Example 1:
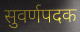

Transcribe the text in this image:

सुवर्णपदक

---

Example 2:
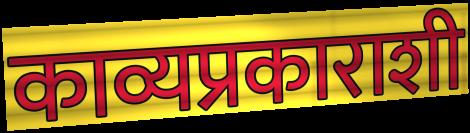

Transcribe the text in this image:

काव्यप्रकाराशी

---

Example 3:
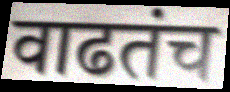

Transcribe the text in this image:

वाढतंच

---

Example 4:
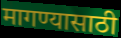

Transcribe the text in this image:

मागण्यासाठी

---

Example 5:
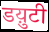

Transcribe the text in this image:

डय़ुटी